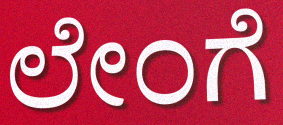
ಲೇಂಗೆ